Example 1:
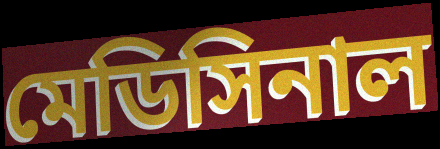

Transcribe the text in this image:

মেডিসিনাল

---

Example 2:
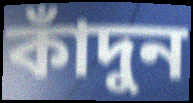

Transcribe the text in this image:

কাঁদুন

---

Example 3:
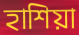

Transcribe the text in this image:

হাশিয়া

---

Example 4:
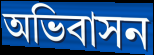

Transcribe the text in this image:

অভিবাসন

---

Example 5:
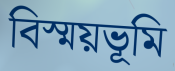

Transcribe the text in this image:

বিস্ময়ভূমি